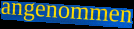
angenommen